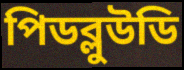
পিডব্লুউডি